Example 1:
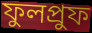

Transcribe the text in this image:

ফুলপ্রুফ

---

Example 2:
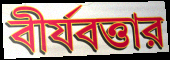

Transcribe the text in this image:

বীর্যবত্তার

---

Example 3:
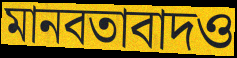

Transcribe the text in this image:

মানবতাবাদও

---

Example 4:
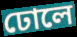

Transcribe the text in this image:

ঢোলে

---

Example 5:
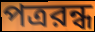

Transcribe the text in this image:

পত্ররন্ধ